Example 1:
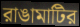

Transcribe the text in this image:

রাঙামাটির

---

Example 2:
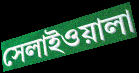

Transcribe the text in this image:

সেলাইওয়ালা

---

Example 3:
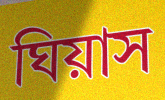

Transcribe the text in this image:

ঘিয়াস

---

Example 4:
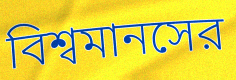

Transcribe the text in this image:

বিশ্বমানসের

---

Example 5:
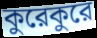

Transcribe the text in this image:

কুরেকুরে